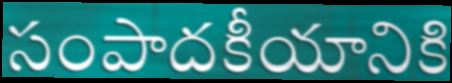
సంపాదకీయానికి